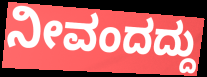
ನೀವಂದದ್ದು